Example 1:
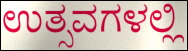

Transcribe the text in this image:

ಉತ್ಸವಗಳಲ್ಲಿ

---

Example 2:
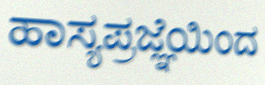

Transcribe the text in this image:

ಹಾಸ್ಯಪ್ರಜ್ಞೆಯಿಂದ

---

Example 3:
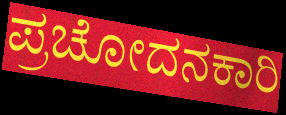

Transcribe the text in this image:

ಪ್ರಚೋದನಕಾರಿ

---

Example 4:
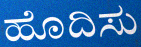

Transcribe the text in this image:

ಹೊದಿಸು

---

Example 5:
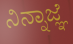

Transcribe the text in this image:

ನಿನ್ನಾಜ್ಞೆ